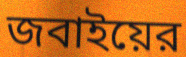
জবাইয়ের